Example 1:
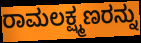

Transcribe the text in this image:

ರಾಮಲಕ್ಷ್ಮಣರನ್ನು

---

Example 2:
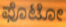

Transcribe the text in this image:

ಫೊಟೋ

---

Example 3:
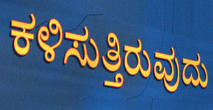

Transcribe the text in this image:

ಕಳಿಸುತ್ತಿರುವುದು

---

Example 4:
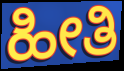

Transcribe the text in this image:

ಹೀತಿ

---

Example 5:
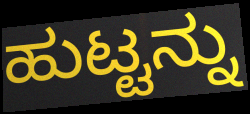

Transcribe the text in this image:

ಹುಟ್ಟನ್ನು